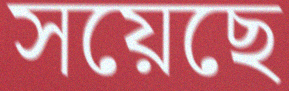
সয়েছে